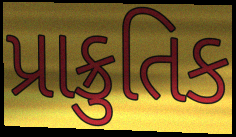
પ્રાક્રુતિક